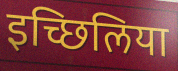
इच्छिलिया